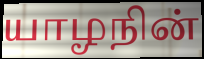
யாழநின்